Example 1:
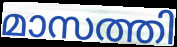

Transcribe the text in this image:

മാസത്തി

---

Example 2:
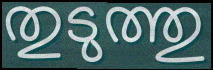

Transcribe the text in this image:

തുടുത്തു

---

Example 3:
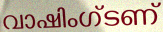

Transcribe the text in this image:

വാഷിംഗ്ടണ്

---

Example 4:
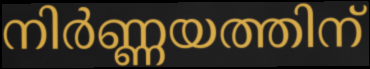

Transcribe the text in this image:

നിർണ്ണയത്തിന്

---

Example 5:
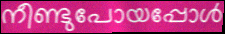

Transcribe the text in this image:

നീണ്ടുപോയപ്പോൾ